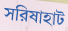
সরিষাহাট